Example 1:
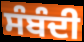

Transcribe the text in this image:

ਸੰਬੰਦੀ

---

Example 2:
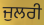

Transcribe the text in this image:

ਜੁਲਰੀ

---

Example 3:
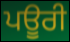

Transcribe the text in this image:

ਪਊਰੀ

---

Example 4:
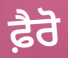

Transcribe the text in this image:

ਫ਼ੈਰੋ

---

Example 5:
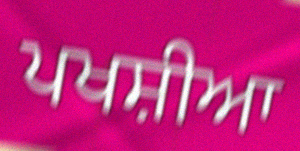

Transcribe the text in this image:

ਪਖਸ਼ੀਆ